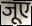
जूए